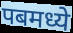
पबमध्ये